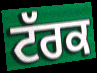
ਟੱਰਕ